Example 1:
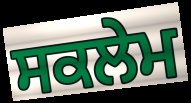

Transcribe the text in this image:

ਸਕਲੇਮ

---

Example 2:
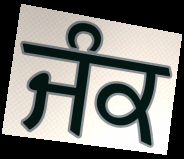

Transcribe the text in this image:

ਜੰਕ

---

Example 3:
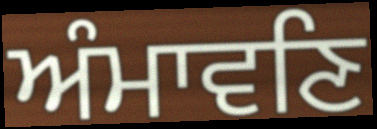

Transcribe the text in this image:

ਅੰਮਾਵਣਿ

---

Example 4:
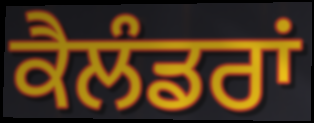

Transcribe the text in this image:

ਕੈਲੰਡਰਾਂ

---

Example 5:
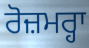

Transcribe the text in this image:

ਰੋਜ਼ਮਰ੍ਹਾ